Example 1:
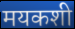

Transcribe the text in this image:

मयकशी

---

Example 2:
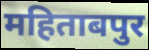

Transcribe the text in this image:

महिताबपुर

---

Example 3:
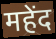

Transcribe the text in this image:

महेंद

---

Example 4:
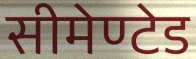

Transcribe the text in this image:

सीमेण्टेड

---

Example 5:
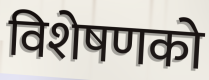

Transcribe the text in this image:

विशेषणको